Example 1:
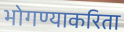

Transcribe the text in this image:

भोगण्याकरिता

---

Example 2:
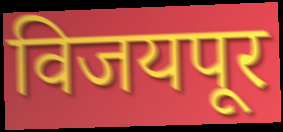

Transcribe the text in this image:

विजयपूर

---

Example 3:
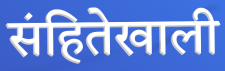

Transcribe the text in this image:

संहितेखाली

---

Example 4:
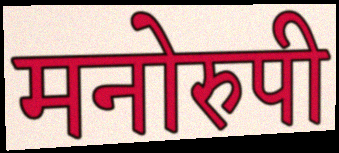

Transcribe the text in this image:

मनोरुपी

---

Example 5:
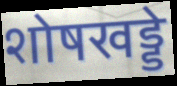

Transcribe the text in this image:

शोषखड्डे